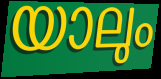
യാലും